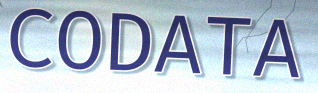
CODATA